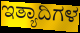
ಇತ್ಯಾದಿಗಳ